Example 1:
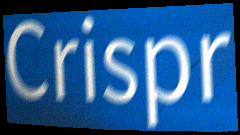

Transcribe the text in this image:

Crispr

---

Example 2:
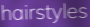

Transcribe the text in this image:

hairstyles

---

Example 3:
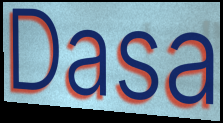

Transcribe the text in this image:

Dasa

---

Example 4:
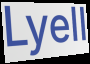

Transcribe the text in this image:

Lyell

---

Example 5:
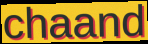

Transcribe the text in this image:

chaand